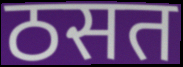
ठसत